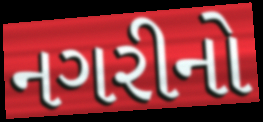
નગરીનો